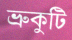
ভ্ৰুকুটি